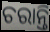
ଚରାନ୍ତି